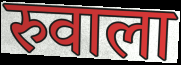
रुवाला